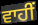
ਵਾਹੀਂ